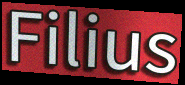
Filius